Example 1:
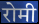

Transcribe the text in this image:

रोमी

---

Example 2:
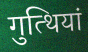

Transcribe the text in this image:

गुत्थियां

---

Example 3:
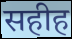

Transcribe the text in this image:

सहीह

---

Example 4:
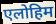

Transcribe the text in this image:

एलोहिम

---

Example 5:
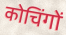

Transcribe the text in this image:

कोचिंगों